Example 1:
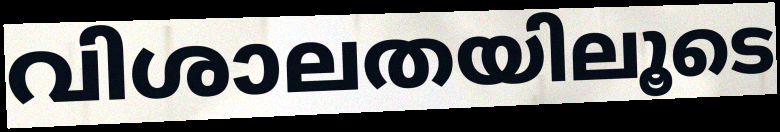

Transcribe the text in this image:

വിശാലതയിലൂടെ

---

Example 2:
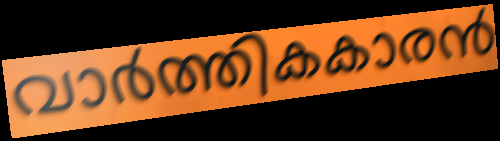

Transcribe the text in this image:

വാർത്തികകാരൻ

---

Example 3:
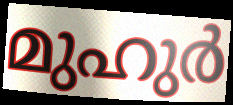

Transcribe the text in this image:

മുഹുർ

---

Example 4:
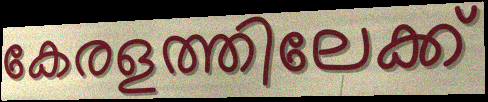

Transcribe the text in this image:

കേരളത്തിലേക്ക്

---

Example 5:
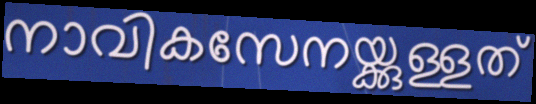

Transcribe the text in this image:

നാവികസേനയ്ക്കുള്ളത്